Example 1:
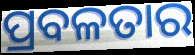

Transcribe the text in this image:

ପ୍ରବଳତାର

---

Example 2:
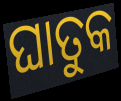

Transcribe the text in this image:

ଘାତୁକ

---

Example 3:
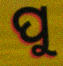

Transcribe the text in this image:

ପୁ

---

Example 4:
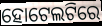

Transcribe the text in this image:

ହୋଟେଲଟିରେ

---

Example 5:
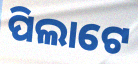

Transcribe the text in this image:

ପିଲାଟେ